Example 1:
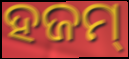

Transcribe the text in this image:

ହଜମ୍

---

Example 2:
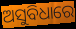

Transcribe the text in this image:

ଅସୁବିଧାରେ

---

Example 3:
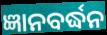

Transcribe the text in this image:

ଜ୍ଞାନବର୍ଦ୍ଧନ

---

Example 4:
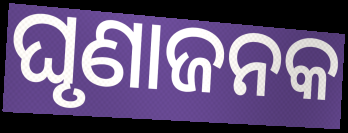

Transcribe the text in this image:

ଘୃଣାଜନକ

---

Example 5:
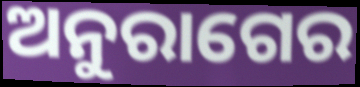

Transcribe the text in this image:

ଅନୁରାଗେର